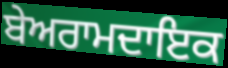
ਬੇਅਰਾਮਦਾਇਕ